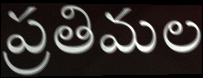
ప్రతిమల